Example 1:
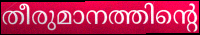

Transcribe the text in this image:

തീരുമാനത്തിന്റെ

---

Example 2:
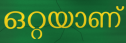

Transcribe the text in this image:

ഒറ്റയാണ്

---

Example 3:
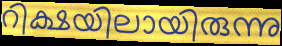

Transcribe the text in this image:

റിക്ഷയിലായിരുന്നു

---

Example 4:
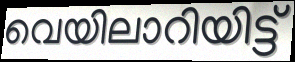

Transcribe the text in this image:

വെയിലാറിയിട്ട്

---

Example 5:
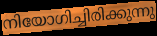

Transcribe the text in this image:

നിയോഗിച്ചിരിക്കുന്നു